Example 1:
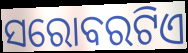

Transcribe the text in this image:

ସରୋବରଟିଏ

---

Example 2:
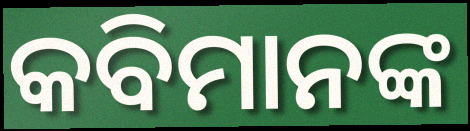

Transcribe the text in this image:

କବିମାନଙ୍କ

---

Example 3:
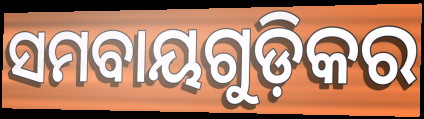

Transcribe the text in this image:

ସମବାୟଗୁଡ଼ିକର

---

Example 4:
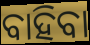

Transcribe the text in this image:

ବାହିବା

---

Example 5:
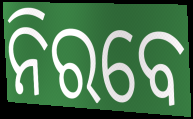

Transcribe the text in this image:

ନିରବେ